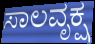
ಸಾಲವೃಕ್ಷ